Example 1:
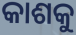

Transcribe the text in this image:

କାଶକୁ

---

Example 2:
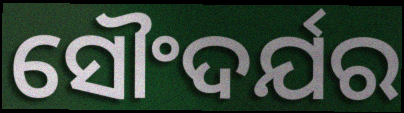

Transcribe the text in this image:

ସୌଂଦର୍ଯର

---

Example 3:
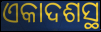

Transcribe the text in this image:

ଏକାଦଶସ୍ଥ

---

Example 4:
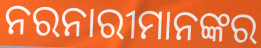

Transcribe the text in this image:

ନରନାରୀମାନଙ୍କର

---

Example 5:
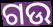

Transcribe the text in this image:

ଗଉ